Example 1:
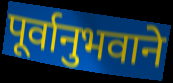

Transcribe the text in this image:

पूर्वानुभवाने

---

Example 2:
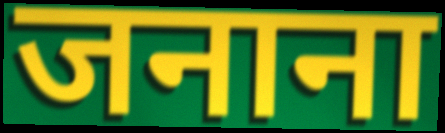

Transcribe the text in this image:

जनाना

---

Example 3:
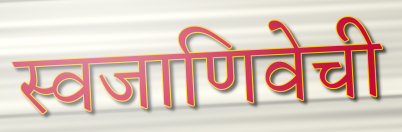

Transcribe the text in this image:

स्वजाणिवेची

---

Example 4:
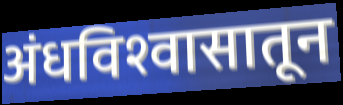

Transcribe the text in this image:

अंधविश्वासातून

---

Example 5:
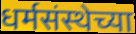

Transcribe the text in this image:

धर्मसंस्थेच्या